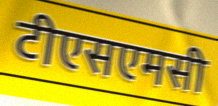
टीएसएमसी